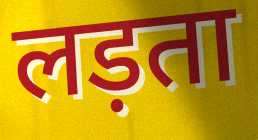
लड़ता